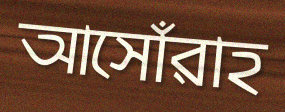
আসোঁৱাহ